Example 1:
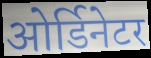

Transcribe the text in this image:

ओर्डिनेटर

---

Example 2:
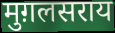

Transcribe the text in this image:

मुग़लसराय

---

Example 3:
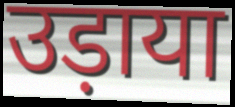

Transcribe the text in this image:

उड़ाया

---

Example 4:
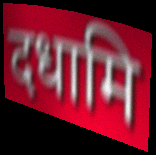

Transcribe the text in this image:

दधामि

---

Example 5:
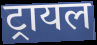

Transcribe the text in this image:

ट्रायल